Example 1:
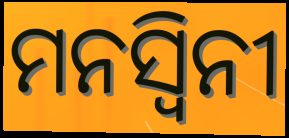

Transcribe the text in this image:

ମନସ୍ୱିନୀ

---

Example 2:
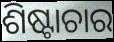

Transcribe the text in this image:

ଶିଷ୍ଟାଚାର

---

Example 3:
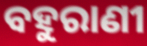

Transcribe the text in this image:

ବହୁରାଣୀ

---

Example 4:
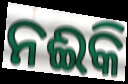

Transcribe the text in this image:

ନଈକି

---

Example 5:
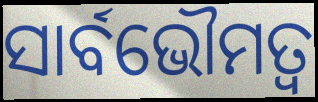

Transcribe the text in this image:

ସାର୍ବଭୌମତ୍ଵ